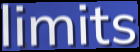
limits